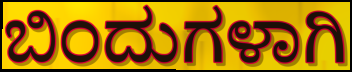
ಬಿಂದುಗಳಾಗಿ